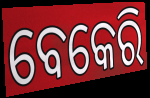
ବେକେରି